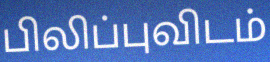
பிலிப்புவிடம்